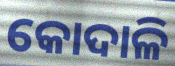
କୋଦାଳି